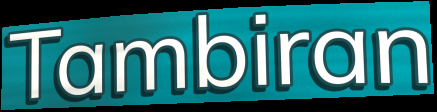
Tambiran